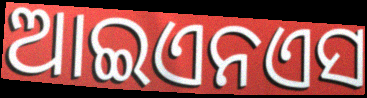
ଆଇଏନଏସ